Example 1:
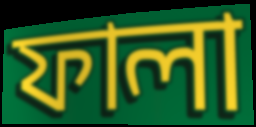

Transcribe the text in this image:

ফালা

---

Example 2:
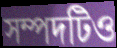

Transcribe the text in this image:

সম্পদটিও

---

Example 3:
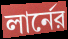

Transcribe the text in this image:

লার্নের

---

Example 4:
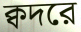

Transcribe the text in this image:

ক্বদরে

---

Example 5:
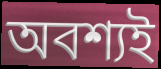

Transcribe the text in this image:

অবশ্যই